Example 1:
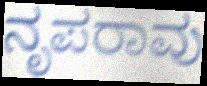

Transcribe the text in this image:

ನೃಪರಾವು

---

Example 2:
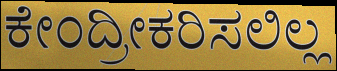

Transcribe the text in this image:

ಕೇಂದ್ರೀಕರಿಸಲಿಲ್ಲ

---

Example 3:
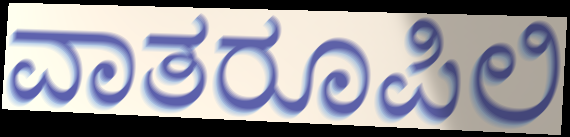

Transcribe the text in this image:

ವಾತರೂಪಿಲಿ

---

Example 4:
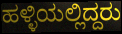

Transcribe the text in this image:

ಹಳ್ಳಿಯಲ್ಲಿದ್ದರು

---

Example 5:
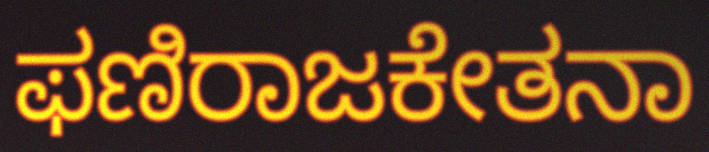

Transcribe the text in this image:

ಫಣಿರಾಜಕೇತನಾ